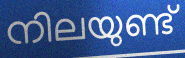
നിലയുണ്ട്